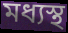
মধ্যস্থ